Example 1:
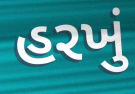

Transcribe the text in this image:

હરખું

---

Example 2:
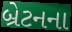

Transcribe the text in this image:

બ્રેટનના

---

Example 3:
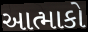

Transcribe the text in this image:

આત્માકો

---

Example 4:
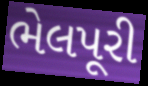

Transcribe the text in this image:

ભેલપૂરી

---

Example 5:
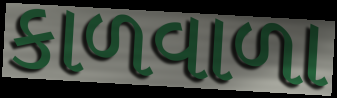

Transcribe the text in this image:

કાળવાળા